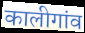
कालीगांव